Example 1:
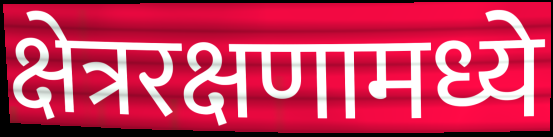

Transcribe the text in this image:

क्षेत्ररक्षणामध्ये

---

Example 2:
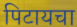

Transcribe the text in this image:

पिटायचा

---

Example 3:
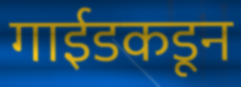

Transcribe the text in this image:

गाईडकडून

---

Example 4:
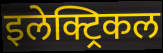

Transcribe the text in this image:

इलेक्ट्रिकल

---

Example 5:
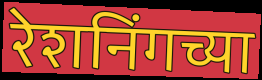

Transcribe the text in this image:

रेशनिंगच्या